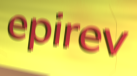
epirev